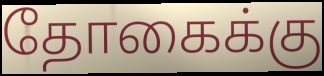
தோகைக்கு